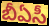
బీఏసీ